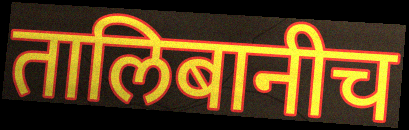
तालिबानीच